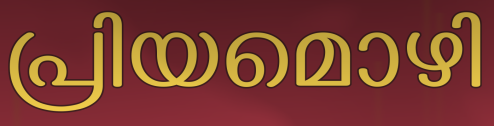
പ്രിയമൊഴി